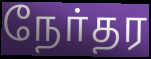
நேர்தர